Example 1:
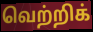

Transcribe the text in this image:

வெற்றிக்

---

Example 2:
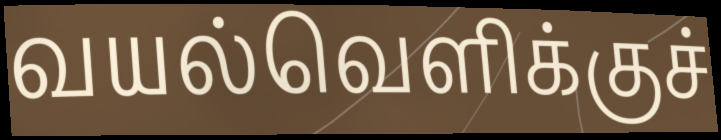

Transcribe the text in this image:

வயல்வெளிக்குச்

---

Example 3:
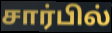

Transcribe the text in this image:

சார்பில்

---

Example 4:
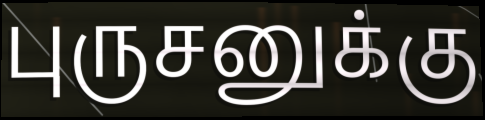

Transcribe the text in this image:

புருசனுக்கு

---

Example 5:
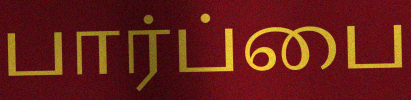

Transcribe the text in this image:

பார்ப்பை